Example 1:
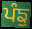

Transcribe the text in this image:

ਪੰਙੁ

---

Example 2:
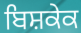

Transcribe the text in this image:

ਬਿਸ਼ਕੇਕ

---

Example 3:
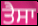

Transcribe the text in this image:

ਤੈਸਾ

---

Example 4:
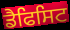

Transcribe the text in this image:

ਡੈਫਿਸਿਟ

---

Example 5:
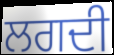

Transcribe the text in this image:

ਲਗਦੀ